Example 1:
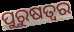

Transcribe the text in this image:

ପୁରୁଷତ୍ଵର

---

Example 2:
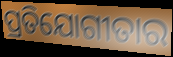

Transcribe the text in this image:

ପ୍ରତିଯୋଗୀତାର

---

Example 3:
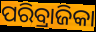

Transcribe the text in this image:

ପରିବ୍ରାଜିକା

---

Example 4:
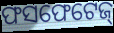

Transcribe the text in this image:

ଫସଫେଟେଜ୍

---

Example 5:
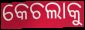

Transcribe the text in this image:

କେଚଲାକୁ